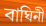
বাঘিনী